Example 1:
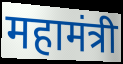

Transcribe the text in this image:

महामंत्री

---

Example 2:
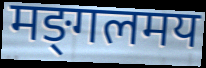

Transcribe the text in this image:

मङ्गलमय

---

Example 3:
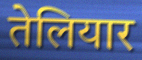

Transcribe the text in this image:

तेलियार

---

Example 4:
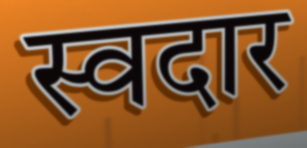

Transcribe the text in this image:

स्वदार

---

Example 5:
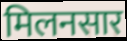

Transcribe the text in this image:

मिलनसार